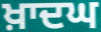
ਖ਼ਾਦਘ